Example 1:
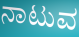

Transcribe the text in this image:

ನಾಟುವ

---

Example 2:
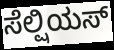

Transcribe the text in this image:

ಸೆಲ್ಷಿಯಸ್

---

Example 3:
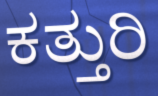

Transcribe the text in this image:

ಕತ್ತುರಿ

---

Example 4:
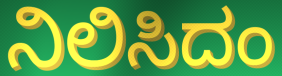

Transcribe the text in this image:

ನಿಲಿಸಿದಂ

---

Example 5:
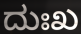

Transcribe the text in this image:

ದುಃಖ